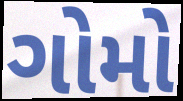
ગોમો